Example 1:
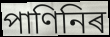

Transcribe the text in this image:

পাণিনিৰ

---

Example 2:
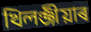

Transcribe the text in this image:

খিলঞ্জীয়াৰ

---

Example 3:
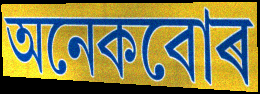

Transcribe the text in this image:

অনেকবোৰ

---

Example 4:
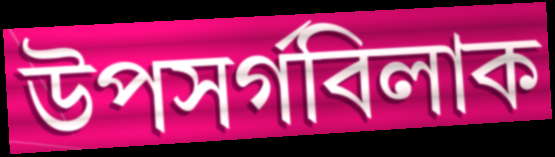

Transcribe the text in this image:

উপসৰ্গবিলাক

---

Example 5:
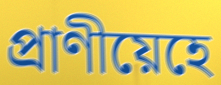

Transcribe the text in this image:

প্ৰাণীয়েহে